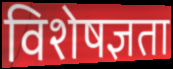
विशेषज्ञता